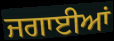
ਜਗਾਈਆਂ